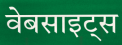
वेबसाइट्स